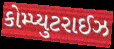
કોમ્પ્યુટરાઈઝ